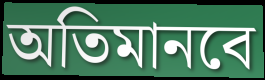
অতিমানবে